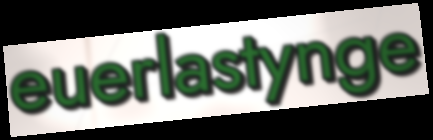
euerlastynge